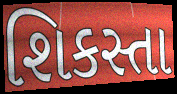
શિકસ્તા